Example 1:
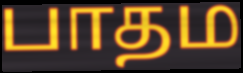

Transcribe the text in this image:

பாதம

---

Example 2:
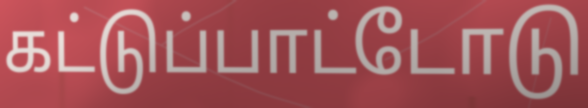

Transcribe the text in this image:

கட்டுப்பாட்டோடு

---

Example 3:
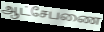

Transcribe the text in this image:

ஆட்சேபணை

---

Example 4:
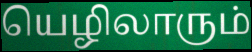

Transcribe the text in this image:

யெழிலாரும்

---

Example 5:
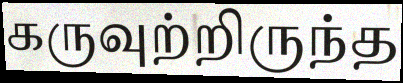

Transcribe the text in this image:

கருவுற்றிருந்த